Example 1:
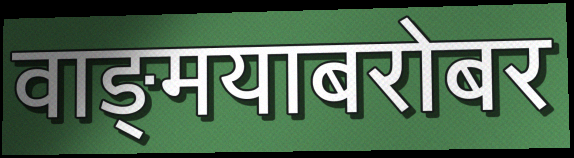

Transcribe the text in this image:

वाङ्मयाबरोबर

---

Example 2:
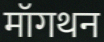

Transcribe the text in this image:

मॉगथन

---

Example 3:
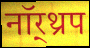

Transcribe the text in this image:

नॉर्थ्रप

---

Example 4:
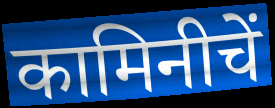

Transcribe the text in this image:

कामिनीचें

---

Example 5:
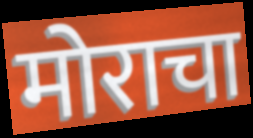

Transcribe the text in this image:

मोराचा